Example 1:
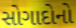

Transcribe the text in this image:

સોગાદોનો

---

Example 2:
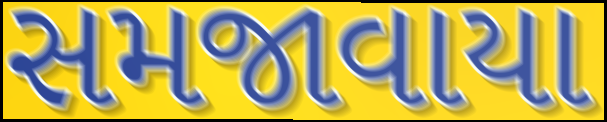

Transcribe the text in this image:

સમજાવાયા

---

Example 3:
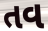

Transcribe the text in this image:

તવ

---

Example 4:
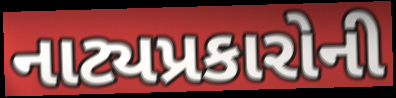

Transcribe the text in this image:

નાટ્યપ્રકારોની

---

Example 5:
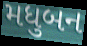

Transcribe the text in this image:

મધુબન